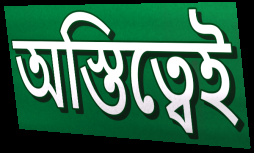
অস্তিত্বেই